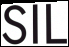
SIL